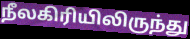
நீலகிரியிலிருந்து